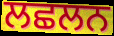
ਲਛਲਨ